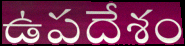
ఉపదేశం